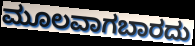
ಮೂಲವಾಗಬಾರದು